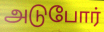
அடுபோர்